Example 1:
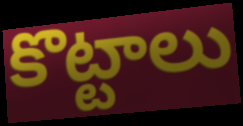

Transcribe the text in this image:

కొట్టాలు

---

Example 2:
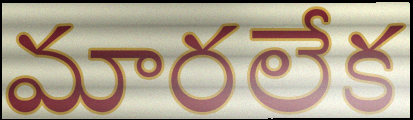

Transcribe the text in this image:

మారలేక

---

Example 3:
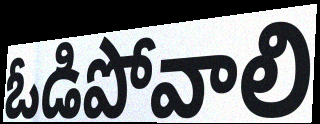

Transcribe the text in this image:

ఓడిపోవాలి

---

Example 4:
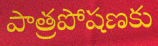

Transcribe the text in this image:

పాత్రపోషణకు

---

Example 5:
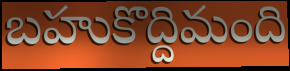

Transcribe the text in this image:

బహుకొద్దిమంది